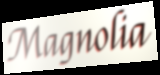
Magnolia